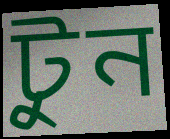
টুন